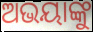
ଅଭୟାଙ୍କୁ